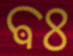
ଵଃ